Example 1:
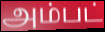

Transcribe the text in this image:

அம்பட்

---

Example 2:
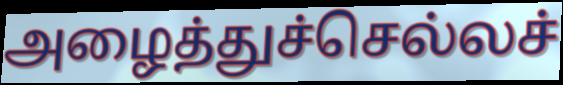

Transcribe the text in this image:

அழைத்துச்செல்லச்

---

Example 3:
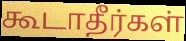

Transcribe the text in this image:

கூடாதீர்கள்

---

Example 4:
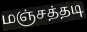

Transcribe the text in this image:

மஞ்சத்தடி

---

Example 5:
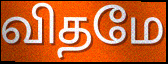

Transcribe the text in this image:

விதமே